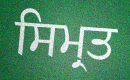
ਸਿਮ੍ਰਤ